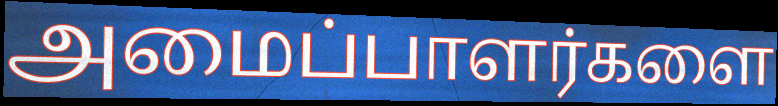
அமைப்பாளர்களை